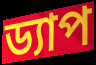
ড্যাপ